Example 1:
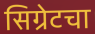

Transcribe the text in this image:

सिग्रेटचा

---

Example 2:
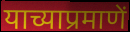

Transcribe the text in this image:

याच्याप्रमाणें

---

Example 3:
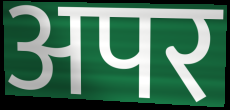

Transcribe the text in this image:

अपर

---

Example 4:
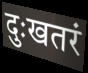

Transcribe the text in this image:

दुःखतरं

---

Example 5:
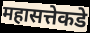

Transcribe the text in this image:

महासत्तेकडे